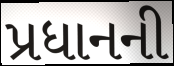
પ્રધાનની